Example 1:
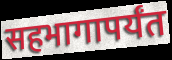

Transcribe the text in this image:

सहभागापर्यंत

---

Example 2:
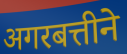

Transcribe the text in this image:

अगरबत्तीने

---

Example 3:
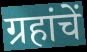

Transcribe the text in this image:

ग्रहांचें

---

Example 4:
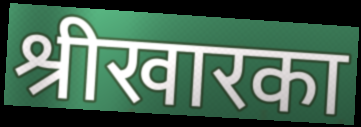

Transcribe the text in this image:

श्रीखारका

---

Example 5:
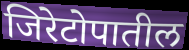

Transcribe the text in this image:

जिरेटोपातील